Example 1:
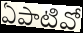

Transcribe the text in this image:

ఏపాటివో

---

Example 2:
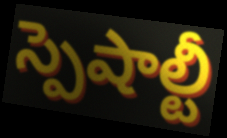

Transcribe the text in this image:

స్పెషాల్టీ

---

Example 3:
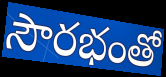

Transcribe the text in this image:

సౌరభంతో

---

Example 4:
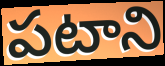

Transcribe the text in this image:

పటాని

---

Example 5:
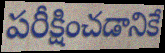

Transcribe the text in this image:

పరీక్షించడానికే